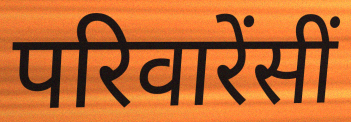
परिवारेंसीं